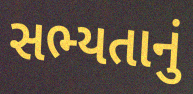
સભ્યતાનું